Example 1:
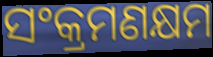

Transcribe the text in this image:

ସଂକ୍ରମଣକ୍ଷମ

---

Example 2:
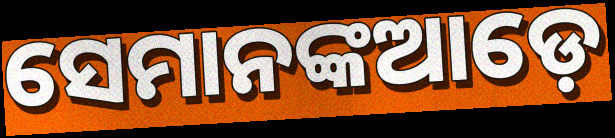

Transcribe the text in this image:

ସେମାନଙ୍କଆଡ଼େ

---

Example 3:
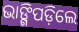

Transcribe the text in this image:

ଭାଙ୍ଗିପଡ଼ିଲେ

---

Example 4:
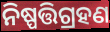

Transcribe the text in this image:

ନିଷ୍ପତ୍ତିଗ୍ରହଣ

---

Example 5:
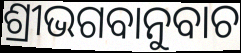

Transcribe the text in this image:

ଶ୍ରୀଭଗବାନୁବାଚ